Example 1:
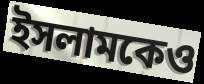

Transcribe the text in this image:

ইসলামকেও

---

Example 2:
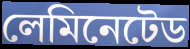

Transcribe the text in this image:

লেমিনেটেড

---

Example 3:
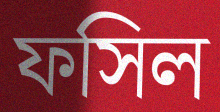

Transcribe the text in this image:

ফসিল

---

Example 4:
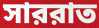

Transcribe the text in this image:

সাররাত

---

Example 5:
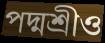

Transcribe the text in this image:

পদ্মশ্রীও